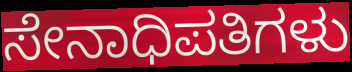
ಸೇನಾಧಿಪತಿಗಳು